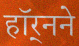
हॉर्नने